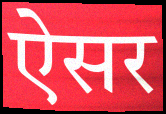
ऐसर